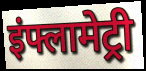
इंफ्लामेट्री